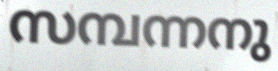
സമ്പന്നനു